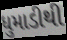
ધુમાડીથી